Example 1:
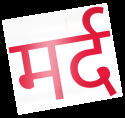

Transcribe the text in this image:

मर्द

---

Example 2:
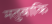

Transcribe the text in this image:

मतुबाकि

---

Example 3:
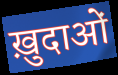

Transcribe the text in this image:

ख़ुदाओं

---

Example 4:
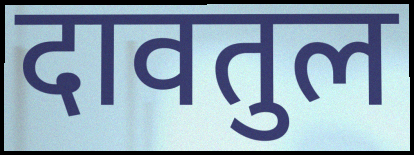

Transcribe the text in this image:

दावतुल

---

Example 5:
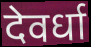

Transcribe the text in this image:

देवर्धा